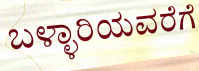
ಬಳ್ಳಾರಿಯವರೆಗೆ